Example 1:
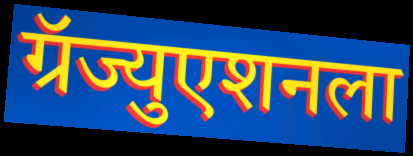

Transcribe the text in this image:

ग्रॅज्युएशनला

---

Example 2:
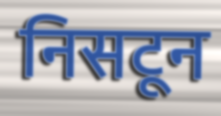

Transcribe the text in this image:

निसटून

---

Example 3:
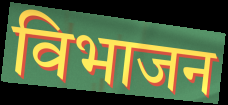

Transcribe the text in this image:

विभाजन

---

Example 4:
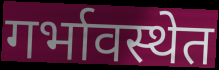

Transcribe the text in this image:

गर्भावस्थेत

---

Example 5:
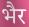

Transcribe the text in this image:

भैर